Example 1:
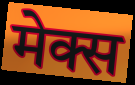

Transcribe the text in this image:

मेक्स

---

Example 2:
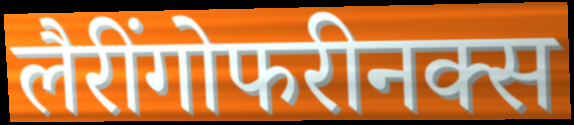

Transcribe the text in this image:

लैरींगोफरीनक्स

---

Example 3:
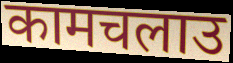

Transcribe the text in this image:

कामचलाउ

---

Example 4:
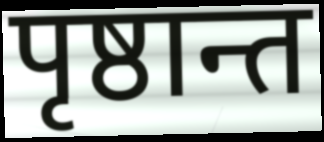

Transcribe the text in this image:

पृष्ठान्त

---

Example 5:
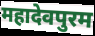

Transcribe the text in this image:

महादेवपुरम